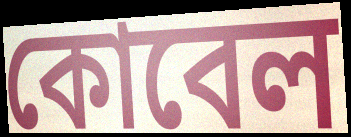
কোবেল